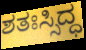
ಶತಃಸ್ಸಿದ್ಧ